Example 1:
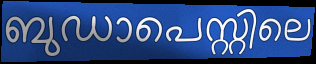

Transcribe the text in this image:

ബുഡാപെസ്റ്റിലെ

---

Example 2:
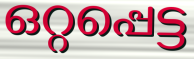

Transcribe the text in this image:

ഒറ്റപ്പെട്ട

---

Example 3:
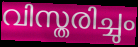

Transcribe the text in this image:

വിസ്തരിച്ചും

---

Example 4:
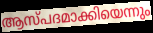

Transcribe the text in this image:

ആസ്പദമാക്കിയെന്നും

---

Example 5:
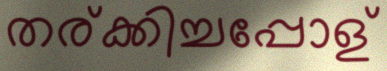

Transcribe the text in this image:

തര്ക്കിച്ചപ്പോള്